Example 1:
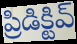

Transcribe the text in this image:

ప్రిడిక్టివ్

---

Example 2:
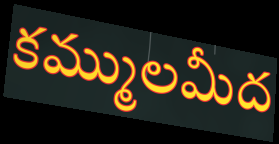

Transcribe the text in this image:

కమ్ములమీద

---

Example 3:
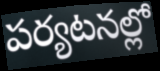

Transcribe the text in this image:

పర్యటనల్లో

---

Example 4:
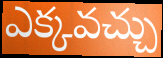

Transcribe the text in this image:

ఎక్కవచ్చు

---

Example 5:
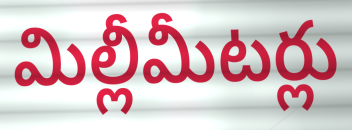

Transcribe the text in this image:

మిల్లీమీటర్లు